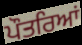
ਪੌਤਰਿਆਂ